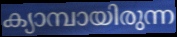
ക്യാമ്പായിരുന്ന